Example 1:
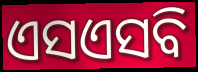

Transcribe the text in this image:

ଏସଏସବି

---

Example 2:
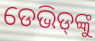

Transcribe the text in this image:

ଡେଭିଡ୍‌ଙ୍କୁ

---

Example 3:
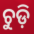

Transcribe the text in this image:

ଚୁଡ଼ି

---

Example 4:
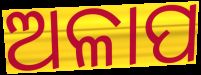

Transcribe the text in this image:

ଅଳାପ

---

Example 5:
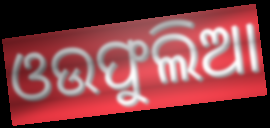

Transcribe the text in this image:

ଓଉଫୁଲିଆ